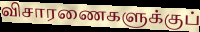
விசாரணைகளுக்குப்